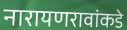
नारायणरावांकडे